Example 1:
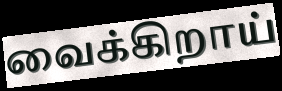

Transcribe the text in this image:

வைக்கிறாய்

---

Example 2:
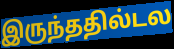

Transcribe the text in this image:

இருந்ததில்டல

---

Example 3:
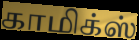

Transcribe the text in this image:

காமிக்ஸ்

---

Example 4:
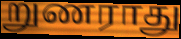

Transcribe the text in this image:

றுணராது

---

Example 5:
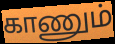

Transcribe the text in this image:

காணும்